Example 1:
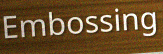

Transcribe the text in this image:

Embossing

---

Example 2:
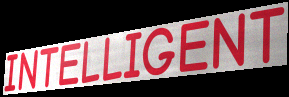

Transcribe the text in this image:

INTELLIGENT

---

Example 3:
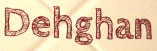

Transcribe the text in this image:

Dehghan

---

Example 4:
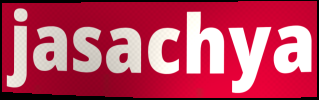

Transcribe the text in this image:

jasachya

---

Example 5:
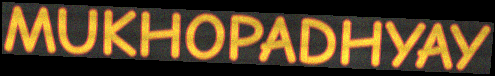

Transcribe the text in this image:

MUKHOPADHYAY